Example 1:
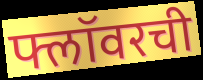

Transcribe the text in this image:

फ्लॉवरची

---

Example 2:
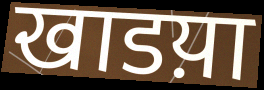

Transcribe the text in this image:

खाडय़ा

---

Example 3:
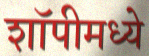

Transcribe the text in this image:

शॉपीमध्ये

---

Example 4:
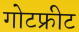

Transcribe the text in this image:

गोटफ्रीट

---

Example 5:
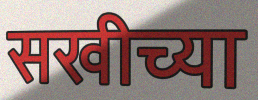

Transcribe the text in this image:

सखीच्या